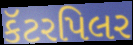
કૅટરપિલર